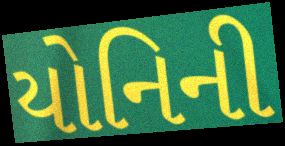
યોનિની